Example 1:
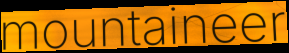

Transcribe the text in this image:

mountaineer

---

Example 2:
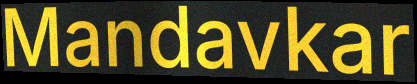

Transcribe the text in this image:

Mandavkar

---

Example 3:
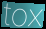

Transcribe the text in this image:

tox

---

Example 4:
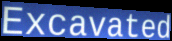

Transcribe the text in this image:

Excavated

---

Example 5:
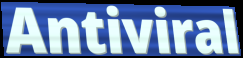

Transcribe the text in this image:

Antiviral